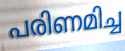
പരിണമിച്ച